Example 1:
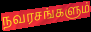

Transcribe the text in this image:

நவரசங்களும்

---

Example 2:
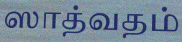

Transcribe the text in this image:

ஸாத்வதம்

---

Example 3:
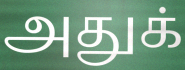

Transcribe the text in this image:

அதுக்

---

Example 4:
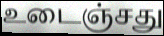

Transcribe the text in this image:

உடைஞ்சது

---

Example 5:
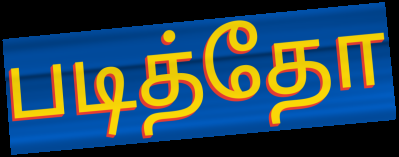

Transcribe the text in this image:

படித்தோ